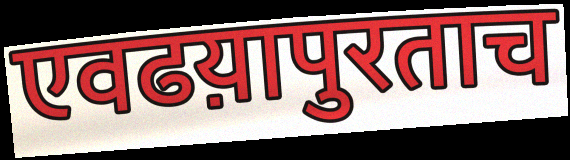
एवढय़ापुरताच